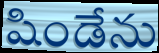
షిండేను